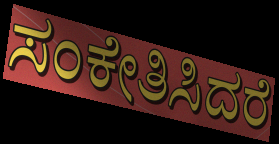
ಸಂಕೇತಿಸಿದರೆ